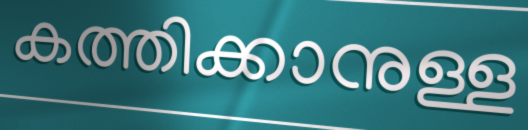
കത്തിക്കാനുള്ള